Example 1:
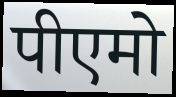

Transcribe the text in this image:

पीएमो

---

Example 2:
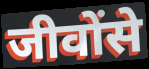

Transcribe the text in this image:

जीवोंसे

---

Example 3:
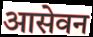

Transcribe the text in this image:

आसेवन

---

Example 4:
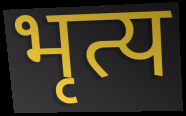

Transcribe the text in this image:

भृत्य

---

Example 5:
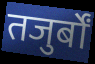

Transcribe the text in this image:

तजुर्बों